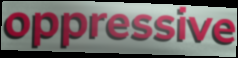
oppressive